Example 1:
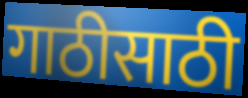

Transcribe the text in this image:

गाठीसाठी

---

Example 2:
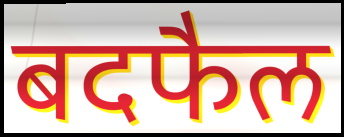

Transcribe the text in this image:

बदफैल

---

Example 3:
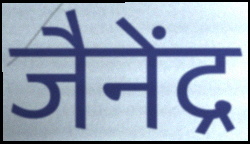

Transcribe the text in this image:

जैनेंद्र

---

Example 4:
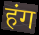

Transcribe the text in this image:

हंग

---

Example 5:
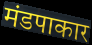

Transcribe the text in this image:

मंडपाकार